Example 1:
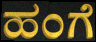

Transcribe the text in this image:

ಹಂಗೆ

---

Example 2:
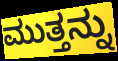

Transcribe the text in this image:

ಮುತ್ತನ್ನು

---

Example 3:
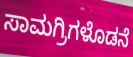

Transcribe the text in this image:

ಸಾಮಗ್ರಿಗಳೊಡನೆ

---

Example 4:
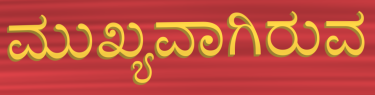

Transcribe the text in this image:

ಮುಖ್ಯವಾಗಿರುವ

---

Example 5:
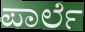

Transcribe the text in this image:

ಪಾರ್ಲೆ